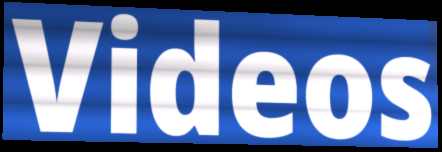
Videos